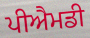
ਪੀਐਮਡੀ